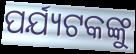
ପର୍ଯ୍ୟଟକଙ୍କୁ